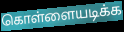
கொள்ளையடிக்க